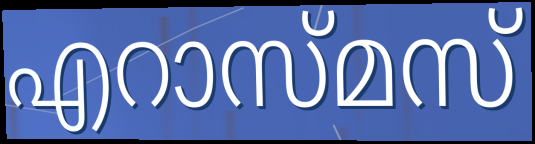
എറാസ്മസ്